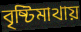
বৃষ্টিমাথায়